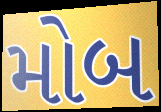
મોબ